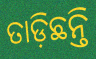
ତାଡ଼ିଛନ୍ତି